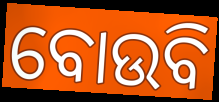
ବୋଉବି